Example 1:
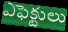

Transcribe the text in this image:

ఎఫెక్టులు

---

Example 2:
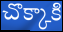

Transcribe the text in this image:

చొక్కాకి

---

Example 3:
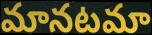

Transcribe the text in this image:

మానటమా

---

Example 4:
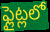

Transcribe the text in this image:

ఫ్లైట్లలో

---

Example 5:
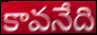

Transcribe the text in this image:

కావనేది